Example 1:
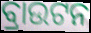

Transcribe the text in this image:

ବ୍ରାଉଟନ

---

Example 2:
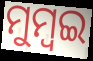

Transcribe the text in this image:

ମୁମ୍ୱଇ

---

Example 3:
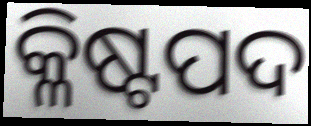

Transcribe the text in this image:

କ୍ଳିଷ୍ଟପଦ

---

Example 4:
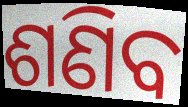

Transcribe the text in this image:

ଶଣିବ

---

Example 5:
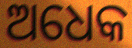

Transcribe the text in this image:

ଅଧେକ